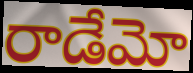
రాడేమో